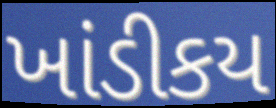
ખાંડીકય